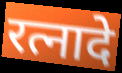
रत्नादे